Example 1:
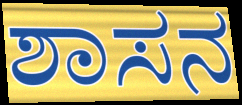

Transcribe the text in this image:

ಶಾಸನ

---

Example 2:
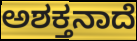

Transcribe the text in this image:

ಅಶಕ್ತನಾದೆ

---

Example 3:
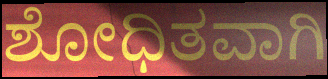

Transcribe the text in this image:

ಶೋಧಿತವಾಗಿ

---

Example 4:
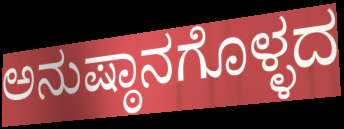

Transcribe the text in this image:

ಅನುಷ್ಠಾನಗೊಳ್ಳದ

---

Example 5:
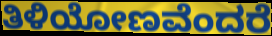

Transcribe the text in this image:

ತಿಳಿಯೋಣವೆಂದರೆ